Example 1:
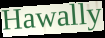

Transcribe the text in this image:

Hawally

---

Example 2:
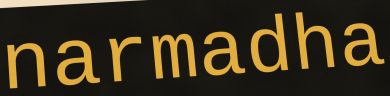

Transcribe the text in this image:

narmadha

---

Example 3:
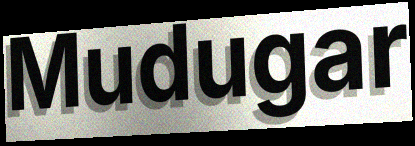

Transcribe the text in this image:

Mudugar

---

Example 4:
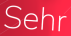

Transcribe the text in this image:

Sehr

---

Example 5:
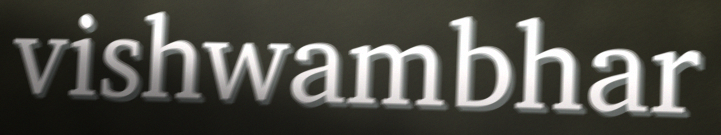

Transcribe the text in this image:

vishwambhar